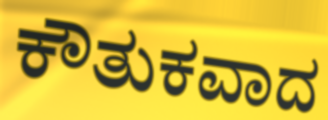
ಕೌತುಕವಾದ